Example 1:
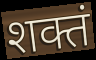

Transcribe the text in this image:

शक्तं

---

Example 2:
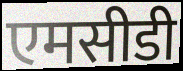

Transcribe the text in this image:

एमसीडी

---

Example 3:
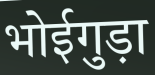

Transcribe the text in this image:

भोईगुड़ा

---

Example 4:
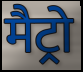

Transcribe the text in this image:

मैट्रो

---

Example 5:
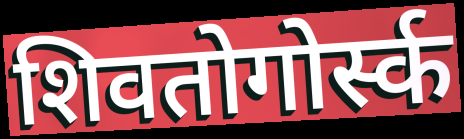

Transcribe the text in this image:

शिवतोगोर्स्क